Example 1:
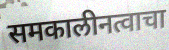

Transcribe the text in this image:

समकालीनत्वाचा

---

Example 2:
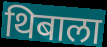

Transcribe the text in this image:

थिबाला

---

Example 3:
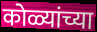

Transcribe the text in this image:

कोळ्यांच्या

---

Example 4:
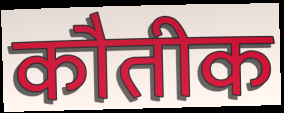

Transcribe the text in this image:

कौतीक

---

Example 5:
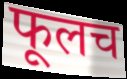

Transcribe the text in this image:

फूलच